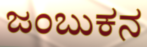
ಜಂಬುಕನ